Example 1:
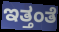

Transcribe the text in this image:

ಇತ್ತಂತೆ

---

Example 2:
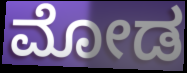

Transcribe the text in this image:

ಮೋಡ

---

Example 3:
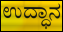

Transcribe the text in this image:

ಉದ್ಧಾನ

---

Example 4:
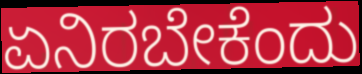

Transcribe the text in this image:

ಏನಿರಬೇಕೆಂದು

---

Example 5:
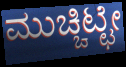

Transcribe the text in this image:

ಮುಚ್ಚಿಟ್ಟೇ